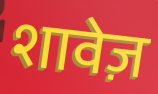
शावेज़